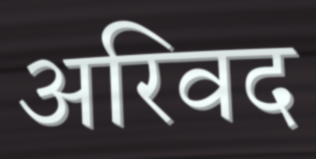
अरिवद